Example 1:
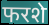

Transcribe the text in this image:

फरशे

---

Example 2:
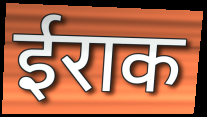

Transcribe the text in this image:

ईराक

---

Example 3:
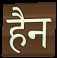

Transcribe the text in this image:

हैन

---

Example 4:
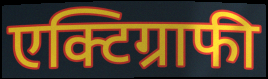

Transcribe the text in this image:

एक्टिग्राफी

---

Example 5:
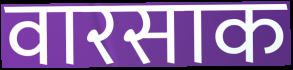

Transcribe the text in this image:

वारसाक